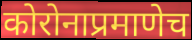
कोरोनाप्रमाणेच